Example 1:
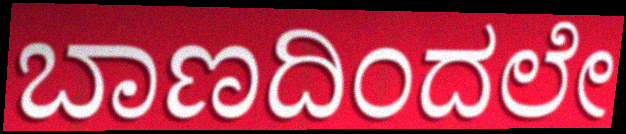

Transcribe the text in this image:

ಬಾಣದಿಂದಲೇ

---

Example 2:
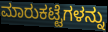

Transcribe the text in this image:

ಮಾರುಕಟ್ಟೆಗಳನ್ನು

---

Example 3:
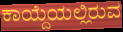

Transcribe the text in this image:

ಕಾಯ್ದೆಯಲ್ಲಿರುವ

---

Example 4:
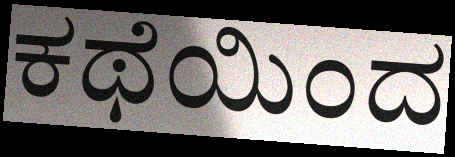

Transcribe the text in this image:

ಕಥೆಯಿಂದ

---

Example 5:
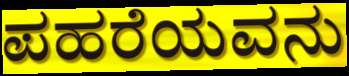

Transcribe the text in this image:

ಪಹರೆಯವನು